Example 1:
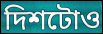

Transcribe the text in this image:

দিশটোও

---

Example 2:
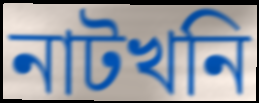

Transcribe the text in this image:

নাটখনি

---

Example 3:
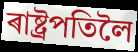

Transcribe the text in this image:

ৰাষ্ট্ৰপতিলৈ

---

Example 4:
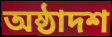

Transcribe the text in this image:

অষ্ঠাদশ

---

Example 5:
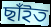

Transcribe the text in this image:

ছাঁইত